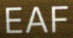
EAF